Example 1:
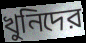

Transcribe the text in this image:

খুনিদের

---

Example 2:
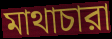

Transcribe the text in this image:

মাথাচারা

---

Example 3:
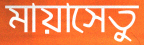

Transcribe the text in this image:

মায়াসেতু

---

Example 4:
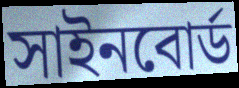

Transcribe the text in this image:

সাইনবোর্ড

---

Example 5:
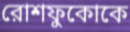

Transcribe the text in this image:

রোশফুকোকে